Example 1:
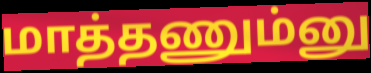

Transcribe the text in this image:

மாத்தணும்னு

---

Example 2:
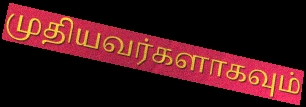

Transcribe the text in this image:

முதியவர்களாகவும்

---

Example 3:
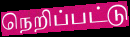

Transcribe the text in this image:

நெறிப்பட்டு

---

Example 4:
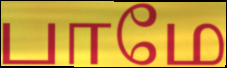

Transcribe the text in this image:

பாமே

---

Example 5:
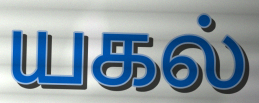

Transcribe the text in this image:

யகல்